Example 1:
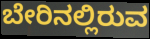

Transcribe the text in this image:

ಬೇರಿನಲ್ಲಿರುವ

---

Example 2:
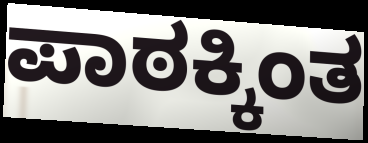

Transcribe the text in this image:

ಪಾಠಕ್ಕಿಂತ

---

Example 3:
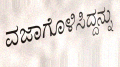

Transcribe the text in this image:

ವಜಾಗೊಳಿಸಿದ್ದನ್ನು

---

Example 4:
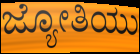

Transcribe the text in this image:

ಜ್ಯೋತಿಯು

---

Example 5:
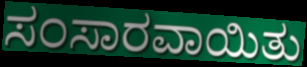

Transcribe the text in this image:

ಸಂಸಾರವಾಯಿತು